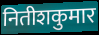
नितीशकुमार